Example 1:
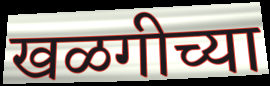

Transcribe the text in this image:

खळगीच्या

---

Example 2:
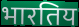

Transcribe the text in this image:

भारतिय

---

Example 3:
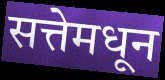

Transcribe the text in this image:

सत्तेमधून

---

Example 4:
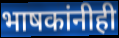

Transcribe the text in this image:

भाषकांनीही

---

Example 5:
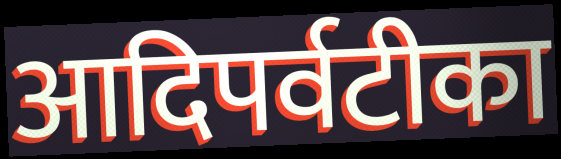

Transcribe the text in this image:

आदिपर्वटीका